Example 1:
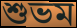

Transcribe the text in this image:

শুভম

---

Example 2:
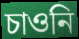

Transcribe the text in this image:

চাওনি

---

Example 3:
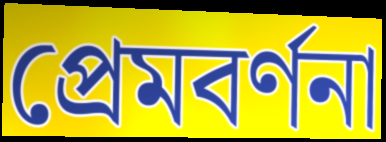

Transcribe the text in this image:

প্রেমবর্ণনা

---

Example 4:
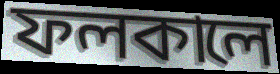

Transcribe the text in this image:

ফলকালে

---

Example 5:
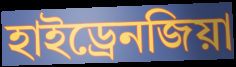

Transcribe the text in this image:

হাইড্রেনজিয়া